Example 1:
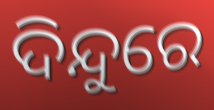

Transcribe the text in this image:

ଦିନ୍ଦୁରେ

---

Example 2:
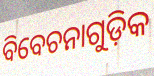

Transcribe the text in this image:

ବିବେଚନାଗୁଡ଼ିକ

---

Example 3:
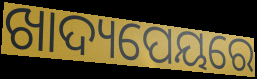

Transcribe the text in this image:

ଖାଦ୍ୟପେୟରେ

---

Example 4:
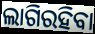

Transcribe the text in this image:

ଲାଗିରହିବା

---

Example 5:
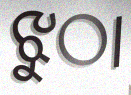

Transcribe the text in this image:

ଝୁଠା